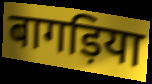
बागड़िया